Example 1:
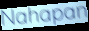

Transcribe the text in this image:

Nahapan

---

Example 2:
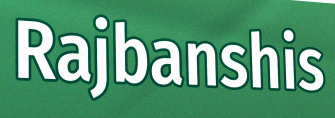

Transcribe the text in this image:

Rajbanshis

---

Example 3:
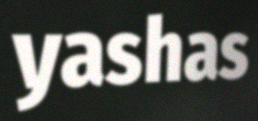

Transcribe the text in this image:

yashas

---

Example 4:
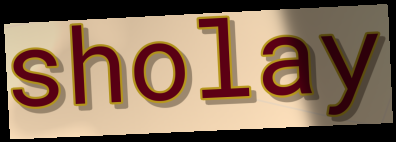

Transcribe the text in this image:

sholay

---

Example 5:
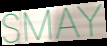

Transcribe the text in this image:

SMAY